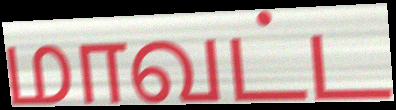
மாவட்ட